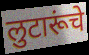
लुटारूंचे